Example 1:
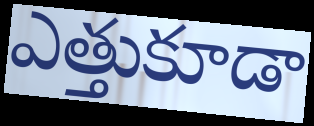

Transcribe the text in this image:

ఎత్తుకూడా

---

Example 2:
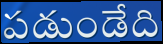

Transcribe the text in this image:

పడుండేది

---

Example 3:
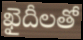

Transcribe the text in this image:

ఖైదీలతో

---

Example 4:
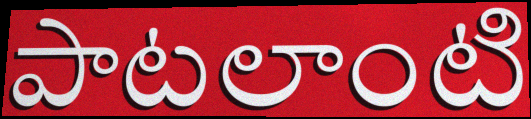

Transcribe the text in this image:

పాటలాంటి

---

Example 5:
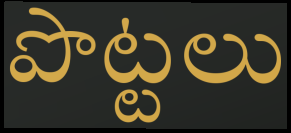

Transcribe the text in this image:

పొట్టలు